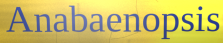
Anabaenopsis